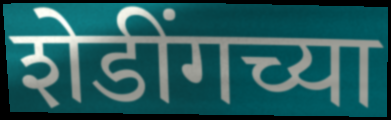
शेडींगच्या